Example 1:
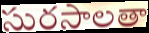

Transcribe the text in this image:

సురసాలతా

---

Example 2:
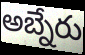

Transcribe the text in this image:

అబ్నేరు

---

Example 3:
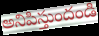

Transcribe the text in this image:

అనిపిస్తుందండి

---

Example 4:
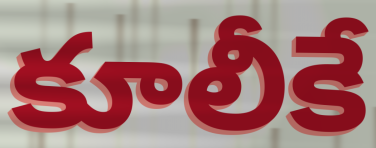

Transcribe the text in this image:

కూలీకే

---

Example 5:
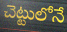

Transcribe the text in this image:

చెట్టులోనే